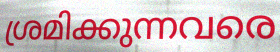
ശ്രമിക്കുന്നവരെ